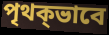
পৃথক্ভাবে